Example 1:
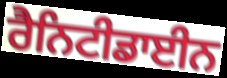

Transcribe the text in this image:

ਰੈਨਿਟੀਡਾਈਨ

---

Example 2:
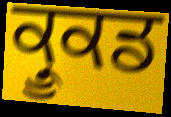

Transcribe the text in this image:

ਕ੍ਰੂਕਡ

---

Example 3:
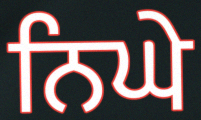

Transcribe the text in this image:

ਨਿਘੇ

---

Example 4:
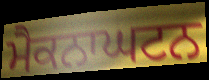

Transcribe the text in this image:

ਮੈਕਨਾਘਟਨ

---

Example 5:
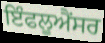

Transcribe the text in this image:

ਇੰਫਲੂਐਂਸਰ